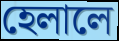
হেলালে